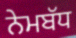
ਨੇਮਬੱਧ